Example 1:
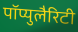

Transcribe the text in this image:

पॉप्युलैरिटी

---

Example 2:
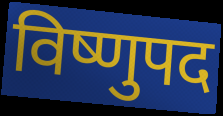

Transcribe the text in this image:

विष्‍णुपद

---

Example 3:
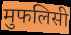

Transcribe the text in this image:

मुफलिसी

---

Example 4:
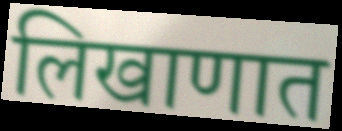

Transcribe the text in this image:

लिखाणात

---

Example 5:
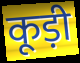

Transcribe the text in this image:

कूड़ी